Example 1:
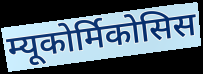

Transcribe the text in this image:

म्यूकोर्मिकोसिस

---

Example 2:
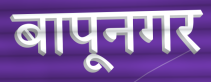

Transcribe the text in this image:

बापूनगर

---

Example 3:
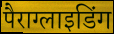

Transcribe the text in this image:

पैराग्लाइडिंग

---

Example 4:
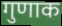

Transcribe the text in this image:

गुणाक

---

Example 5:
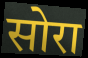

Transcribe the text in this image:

सोरा